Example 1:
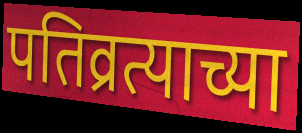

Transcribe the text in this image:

पतिव्रत्याच्या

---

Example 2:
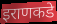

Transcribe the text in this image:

इराणकडे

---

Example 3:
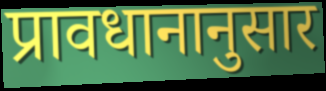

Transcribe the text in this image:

प्रावधानानुसार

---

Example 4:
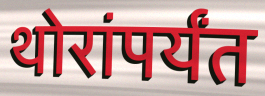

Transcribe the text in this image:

थोरांपर्यंत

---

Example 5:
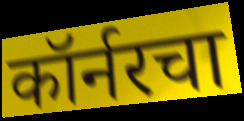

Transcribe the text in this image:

कॉर्नरचा